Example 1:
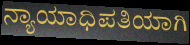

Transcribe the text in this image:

ನ್ಯಾಯಾಧಿಪತಿಯಾಗಿ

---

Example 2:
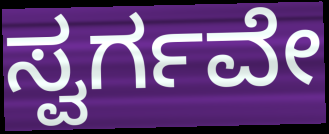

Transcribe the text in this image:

ಸ್ವರ್ಗವೇ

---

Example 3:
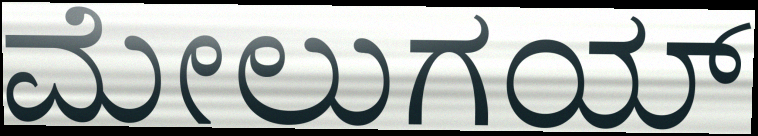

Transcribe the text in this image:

ಮೇಲುಗಯ್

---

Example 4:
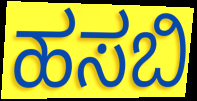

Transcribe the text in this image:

ಹಸಬಿ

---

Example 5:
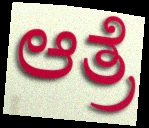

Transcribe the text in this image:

ಆತ್ರೆ